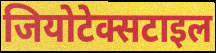
जियोटेक्सटाइल